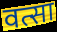
वत्सा